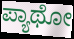
ಪ್ಯಾಥೋ